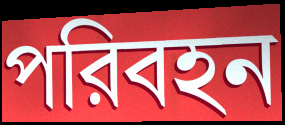
পরিবহন